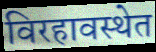
विरहावस्थेत